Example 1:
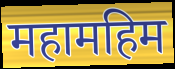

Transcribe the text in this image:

महामहिम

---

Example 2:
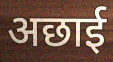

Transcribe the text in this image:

अछाई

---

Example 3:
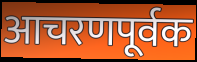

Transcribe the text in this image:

आचरणपूर्वक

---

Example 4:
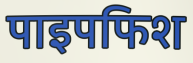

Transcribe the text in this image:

पाइपफिश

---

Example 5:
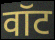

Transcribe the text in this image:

वॉट